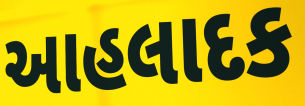
આહલાદક